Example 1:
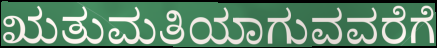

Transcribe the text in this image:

ಋತುಮತಿಯಾಗುವವರೆಗೆ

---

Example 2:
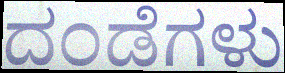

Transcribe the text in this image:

ದಂಡೆಗಳು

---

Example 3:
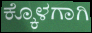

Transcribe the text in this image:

ಕ್ಕೊಳಗಾಗಿ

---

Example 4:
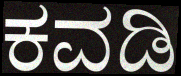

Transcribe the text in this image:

ಕವಡಿ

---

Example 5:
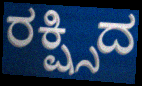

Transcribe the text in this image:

ರಕ್ಷ್ಸಿದ